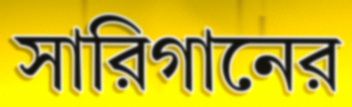
সারিগানের